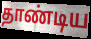
தாண்டிய